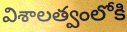
విశాలత్వంలోకి